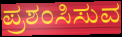
ಪ್ರಶಂಸಿಸುವ